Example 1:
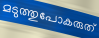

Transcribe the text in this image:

മടുത്തുപോകരുത്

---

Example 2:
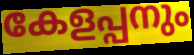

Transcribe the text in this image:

കേളപ്പനും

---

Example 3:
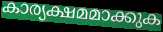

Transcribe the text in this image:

കാര്യക്ഷമമാക്കുക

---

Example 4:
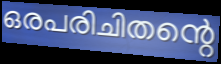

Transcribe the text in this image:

ഒരപരിചിതന്റെ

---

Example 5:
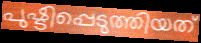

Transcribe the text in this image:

പുഷ്ടിപ്പെടുത്തിയത്